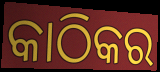
କାଠିକର